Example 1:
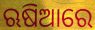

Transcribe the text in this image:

ଋଷିଆରେ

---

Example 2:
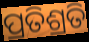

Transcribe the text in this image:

ପ୍ରତିଶ୍ରତି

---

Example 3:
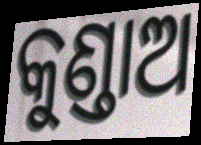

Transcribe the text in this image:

କୁଣ୍ଡାଅ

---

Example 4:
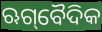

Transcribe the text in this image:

ଋଗ୍‌ବୈଦିକ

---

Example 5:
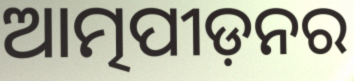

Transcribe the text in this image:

ଆତ୍ମପୀଡ଼ନର